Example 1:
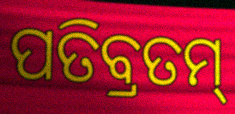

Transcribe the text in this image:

ପତିବ୍ରତମ୍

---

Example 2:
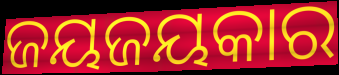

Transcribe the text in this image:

ଜୟଜୟକାର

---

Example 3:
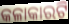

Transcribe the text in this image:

କଳାକାରଟି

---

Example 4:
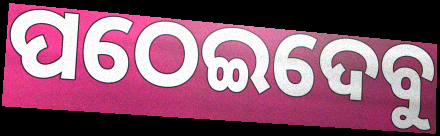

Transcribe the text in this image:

ପଠେଇଦେବୁ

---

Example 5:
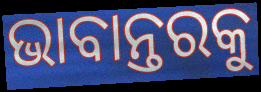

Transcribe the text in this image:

ଭାବାନ୍ତରକୁ